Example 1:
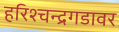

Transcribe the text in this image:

हरिश्चन्द्रगडावर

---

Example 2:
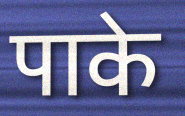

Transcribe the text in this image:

पाके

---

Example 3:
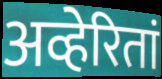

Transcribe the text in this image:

अव्हेरितां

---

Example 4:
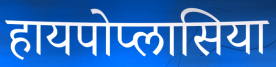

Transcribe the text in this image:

हायपोप्लासिया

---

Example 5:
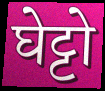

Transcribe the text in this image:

घेट्टो